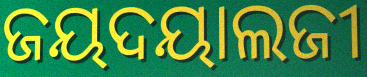
ଜୟଦୟାଲଜୀ